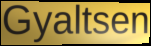
Gyaltsen